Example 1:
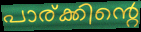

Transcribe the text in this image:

പാര്ക്കിന്റെ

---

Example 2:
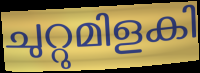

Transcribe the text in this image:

ചുറ്റുമിളകി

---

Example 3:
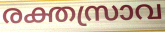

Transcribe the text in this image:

രക്തസ്രാവ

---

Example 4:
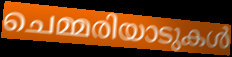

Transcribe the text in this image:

ചെമ്മരിയാടുകൾ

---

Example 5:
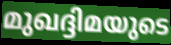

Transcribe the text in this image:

മുഖദ്ദിമയുടെ